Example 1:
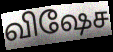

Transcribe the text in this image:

விஷேச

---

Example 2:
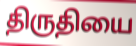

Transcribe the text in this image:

திருதியை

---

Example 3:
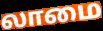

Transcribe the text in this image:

லாமை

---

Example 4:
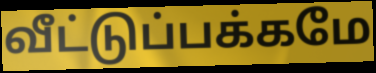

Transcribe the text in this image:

வீட்டுப்பக்கமே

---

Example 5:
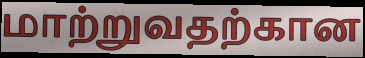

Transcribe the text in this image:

மாற்றுவதற்கான